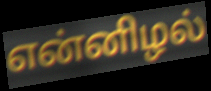
என்னிழல்